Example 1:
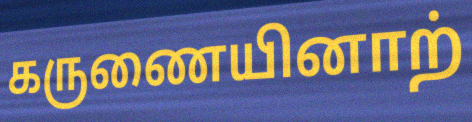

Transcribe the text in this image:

கருணையினாற்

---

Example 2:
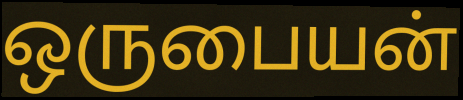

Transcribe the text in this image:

ஒருபையன்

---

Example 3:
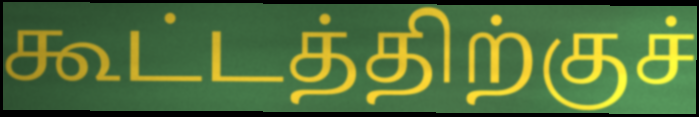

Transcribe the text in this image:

கூட்டத்திற்குச்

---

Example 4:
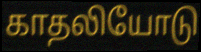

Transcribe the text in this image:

காதலியோடு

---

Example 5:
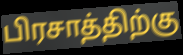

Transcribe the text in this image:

பிரசாத்திற்கு